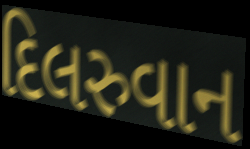
દિલરુવાન